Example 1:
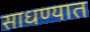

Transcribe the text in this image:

साधण्यात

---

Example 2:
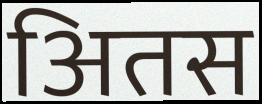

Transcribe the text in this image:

अितस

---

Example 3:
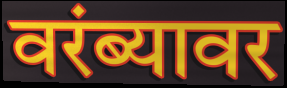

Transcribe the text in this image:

वरंब्यावर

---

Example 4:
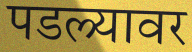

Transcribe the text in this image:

पडल्यावर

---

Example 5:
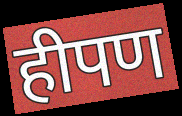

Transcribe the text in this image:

हीपण